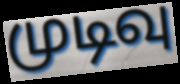
முடிவு